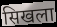
सिखला